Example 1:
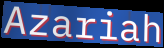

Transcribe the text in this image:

Azariah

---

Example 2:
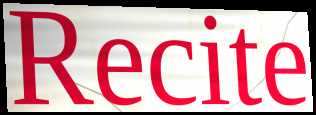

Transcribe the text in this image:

Recite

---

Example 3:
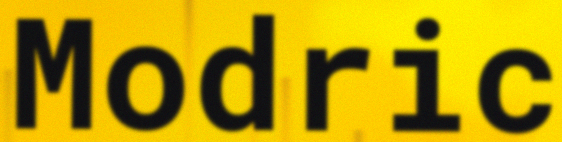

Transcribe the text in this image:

Modric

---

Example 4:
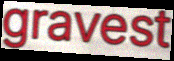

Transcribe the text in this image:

gravest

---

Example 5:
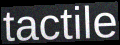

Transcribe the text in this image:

tactile